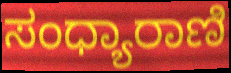
ಸಂಧ್ಯಾರಾಣಿ